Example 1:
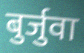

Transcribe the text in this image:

बुर्जुवा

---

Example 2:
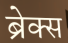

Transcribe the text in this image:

ब्रेक्स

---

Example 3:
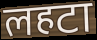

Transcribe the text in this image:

लहटा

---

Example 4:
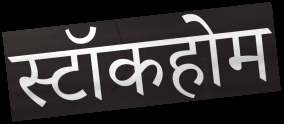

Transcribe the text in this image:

स्टॉकहोम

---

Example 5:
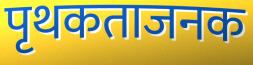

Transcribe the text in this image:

पृथकताजनक